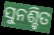
ସୁନଶ୍ଚିତ